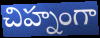
చిహ్నంగా